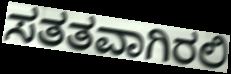
ಸತತವಾಗಿರಲಿ